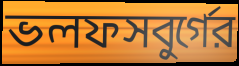
ভলফসবুর্গের